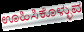
ಊಹಿಸಿಕೊಳ್ಳುವ